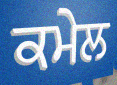
ਕਮੇਲ